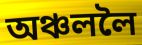
অঞ্চললৈ